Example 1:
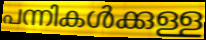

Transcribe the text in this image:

പന്നികൾക്കുള്ള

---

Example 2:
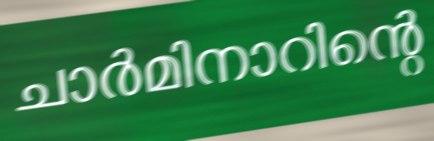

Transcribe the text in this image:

ചാർമിനാറിന്റെ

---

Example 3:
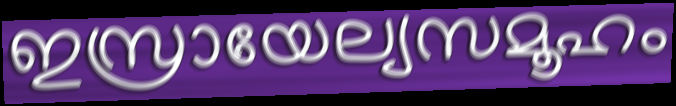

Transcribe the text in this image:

ഇസ്രായേല്യസമൂഹം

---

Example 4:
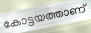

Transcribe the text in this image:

കോട്ടയത്താണ്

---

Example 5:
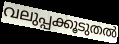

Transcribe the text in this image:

വലുപ്പക്കൂടുതൽ